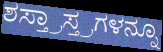
ಶಸ್ತ್ರಾಸ್ತ್ರಗಳನ್ನೂ